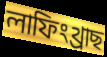
লাফিংথ্ৰাছ